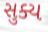
સુક્ય